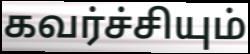
கவர்ச்சியும்